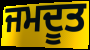
ਜਮਦੂਤ